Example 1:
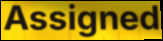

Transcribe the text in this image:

Assigned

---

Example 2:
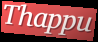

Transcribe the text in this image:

Thappu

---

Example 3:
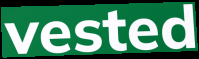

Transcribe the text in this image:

vested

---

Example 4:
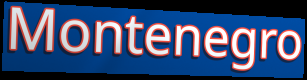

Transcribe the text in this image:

Montenegro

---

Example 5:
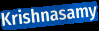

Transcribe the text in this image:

Krishnasamy